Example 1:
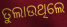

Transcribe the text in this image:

ତୁଲାଉଥିଲେ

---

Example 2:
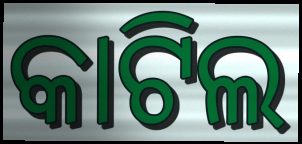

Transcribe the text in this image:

କାଟିଲ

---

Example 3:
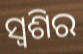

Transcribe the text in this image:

ସ୍ଵଶିର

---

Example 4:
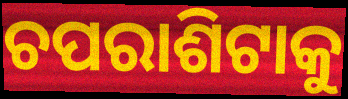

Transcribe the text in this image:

ଚପରାଶିଟାକୁ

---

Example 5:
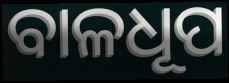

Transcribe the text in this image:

ବାଳଧୂପ